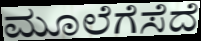
ಮೂಲೆಗೆಸೆದೆ